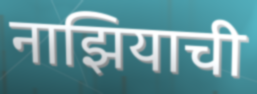
नाझियाची